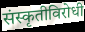
संस्कृतीविरोधी